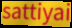
sattiyai